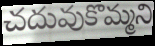
చదువుకొమ్మని